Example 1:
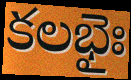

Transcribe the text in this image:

కలభైః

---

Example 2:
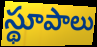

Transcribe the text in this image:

స్థూపాలు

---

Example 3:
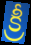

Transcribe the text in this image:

క్రీ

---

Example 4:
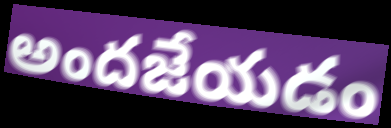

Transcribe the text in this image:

అందజేయడం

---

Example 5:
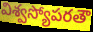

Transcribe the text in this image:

విశ్వస్యోపరతౌ